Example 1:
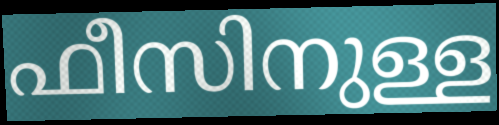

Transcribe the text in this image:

ഫീസിനുള്ള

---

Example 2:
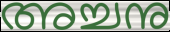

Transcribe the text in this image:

അച്ചനു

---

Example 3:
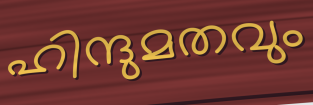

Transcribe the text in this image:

ഹിന്ദുമതവും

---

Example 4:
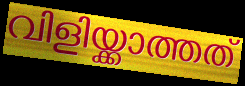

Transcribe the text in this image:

വിളിയ്ക്കാത്തത്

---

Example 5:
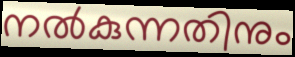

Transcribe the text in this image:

നൽകുന്നതിനും